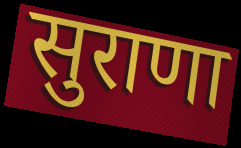
सुराणा